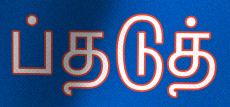
ப்தடுத்